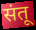
संतू